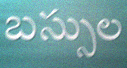
బస్సుల